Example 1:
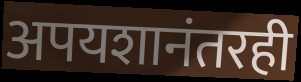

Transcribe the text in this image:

अपयशानंतरही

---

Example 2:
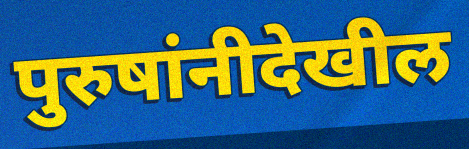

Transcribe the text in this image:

पुरुषांनीदेखील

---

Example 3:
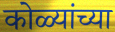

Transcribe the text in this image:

कोळ्यांच्या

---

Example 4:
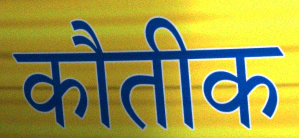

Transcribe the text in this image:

कौतीक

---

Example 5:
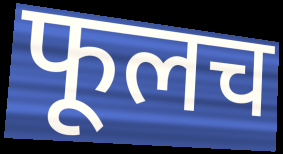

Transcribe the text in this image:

फूलच